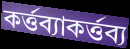
কর্ত্তব্যাকর্ত্তব্য